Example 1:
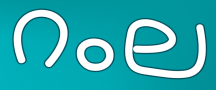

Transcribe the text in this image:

റംല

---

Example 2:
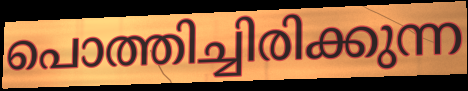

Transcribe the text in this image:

പൊത്തിച്ചിരിക്കുന്ന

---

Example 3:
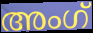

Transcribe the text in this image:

അംഗ്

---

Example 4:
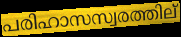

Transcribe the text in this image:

പരിഹാസസ്വരത്തില്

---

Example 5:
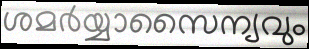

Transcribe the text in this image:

ശമർയ്യാസൈന്യവും